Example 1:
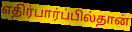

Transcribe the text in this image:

எதிர்பார்ப்பில்தான்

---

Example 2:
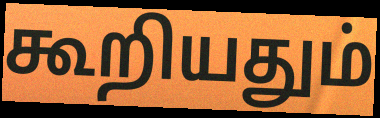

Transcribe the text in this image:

கூறியதும்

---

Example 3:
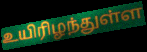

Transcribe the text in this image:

உயிரிழந்துள்ள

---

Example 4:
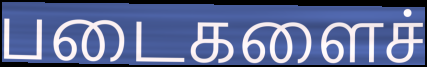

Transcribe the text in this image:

படைகளைச்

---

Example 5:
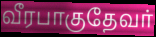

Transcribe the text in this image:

வீரபாகுதேவர்